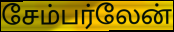
சேம்பர்லேன்